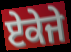
ਏਕੇਜੇ